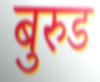
बुरुड